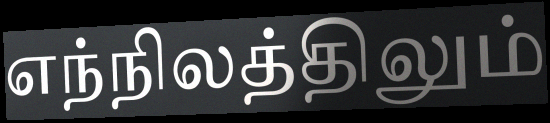
எந்நிலத்திலும்